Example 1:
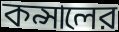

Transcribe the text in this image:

কন্সালের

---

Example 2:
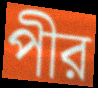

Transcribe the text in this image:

পীর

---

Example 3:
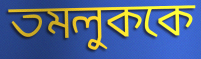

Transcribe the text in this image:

তমলুককে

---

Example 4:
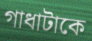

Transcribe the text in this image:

গাধাটাকে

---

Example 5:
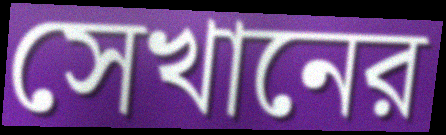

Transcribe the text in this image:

সেখানের